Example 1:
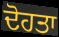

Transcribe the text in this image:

ਦੋਹਤਾ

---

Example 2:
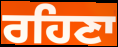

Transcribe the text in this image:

ਰਹਿਣਾ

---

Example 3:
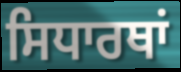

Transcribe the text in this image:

ਸਿਧਾਰਥਾਂ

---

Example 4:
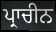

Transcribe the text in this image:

ਪ੍ਰਾਚੀਨ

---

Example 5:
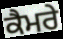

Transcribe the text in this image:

ਕੈਮਰੇ